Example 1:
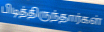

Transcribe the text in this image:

பிடித்திருந்தார்கள்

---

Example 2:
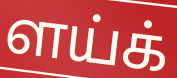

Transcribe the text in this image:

ளய்க்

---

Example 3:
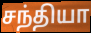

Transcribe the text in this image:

சந்தியா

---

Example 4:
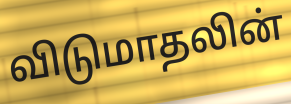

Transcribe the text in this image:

விடுமாதலின்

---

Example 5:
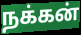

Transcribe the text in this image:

நக்கன்